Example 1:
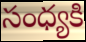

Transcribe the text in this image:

సంధ్యకి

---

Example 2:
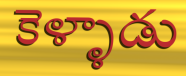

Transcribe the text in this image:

కెళ్ళాడు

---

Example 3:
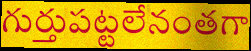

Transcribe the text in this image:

గుర్తుపట్టలేనంతగా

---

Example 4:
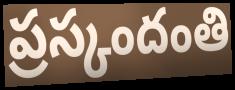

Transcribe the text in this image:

ప్రస్కందంతి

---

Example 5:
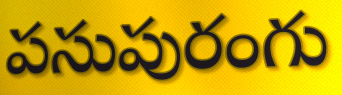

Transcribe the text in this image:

పసుపురంగు